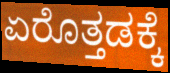
ಏರೊತ್ತಡಕ್ಕೆ